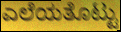
ಎಲೆಯತೊಟ್ಟು